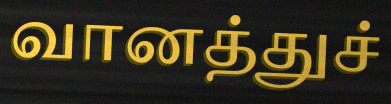
வானத்துச்